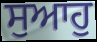
ਸੁਆਹੁ